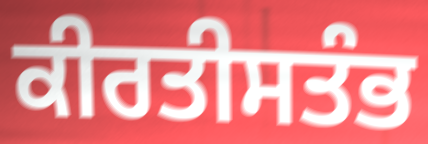
ਕੀਰਤੀਸਤੰਭ